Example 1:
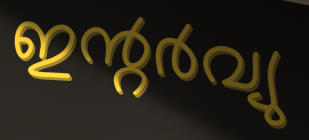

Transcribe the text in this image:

ഇന്റർവ്യു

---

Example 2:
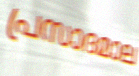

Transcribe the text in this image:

പ്രസാദമാല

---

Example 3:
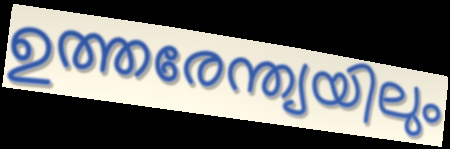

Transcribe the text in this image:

ഉത്തരേന്ത്യയിലും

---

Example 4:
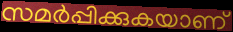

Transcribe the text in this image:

സമർപ്പിക്കുകയാണ്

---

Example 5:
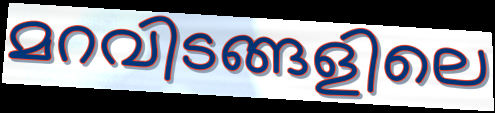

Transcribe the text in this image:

മറവിടങ്ങളിലെ